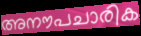
അനൗപചാരിക